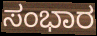
ಸಂಭಾರ